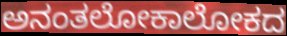
ಅನಂತಲೋಕಾಲೋಕದ